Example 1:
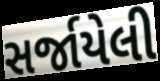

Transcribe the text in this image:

સર્જાયેલી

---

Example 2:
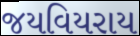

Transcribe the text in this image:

જયવિયરાય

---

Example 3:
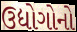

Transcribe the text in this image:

ઉદ્યોગોનો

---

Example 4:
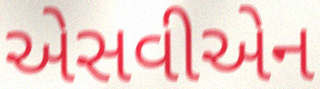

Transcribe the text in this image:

એસવીએન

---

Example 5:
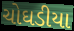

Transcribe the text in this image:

ચોઘડીયા